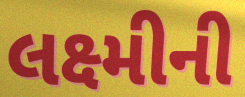
લક્ષ્મીની